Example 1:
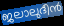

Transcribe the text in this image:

ജലാലുദീൻ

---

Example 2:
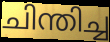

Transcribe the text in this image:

ചിന്തിച്ച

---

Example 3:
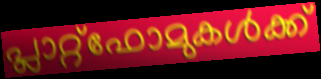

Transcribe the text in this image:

പ്ലാറ്റ്ഫോമുകൾക്ക്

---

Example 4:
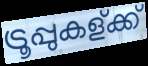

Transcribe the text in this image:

ട്രൂപ്പുകള്ക്ക്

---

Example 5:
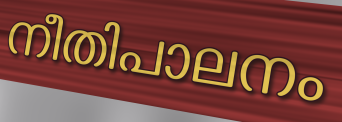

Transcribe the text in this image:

നീതിപാലനം